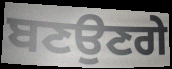
ਬਣਉਣਗੇ